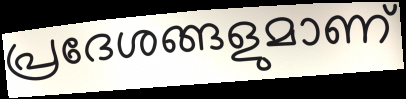
പ്രദേശങ്ങളുമാണ്